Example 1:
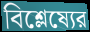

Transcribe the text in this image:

বিশ্লেষ্যের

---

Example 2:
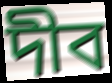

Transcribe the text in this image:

দীব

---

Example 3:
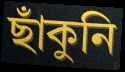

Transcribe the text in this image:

ছাঁকুনি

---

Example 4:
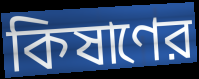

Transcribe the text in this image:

কিষাণের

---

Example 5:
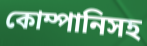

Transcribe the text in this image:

কোম্পানিসহ